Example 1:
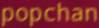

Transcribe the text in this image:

popchan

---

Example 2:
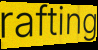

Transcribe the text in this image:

rafting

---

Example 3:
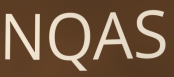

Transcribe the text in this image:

NQAS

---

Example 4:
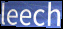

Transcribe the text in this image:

leech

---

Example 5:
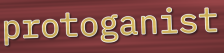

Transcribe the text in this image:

protoganist